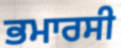
ਭਮਾਰਸੀ